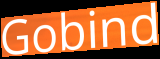
Gobind